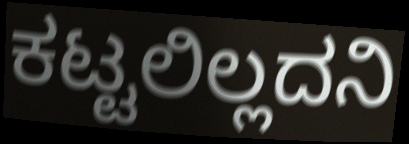
ಕಟ್ಟಲಿಲ್ಲದನಿ